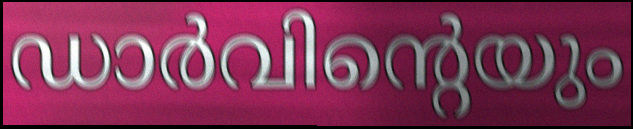
ഡാർവിന്റെയും